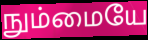
நும்மையே